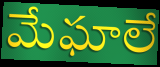
మేఘాలే